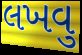
લખવુ